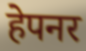
हेपनर